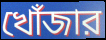
খোঁজার